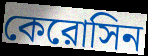
কেরোসিন